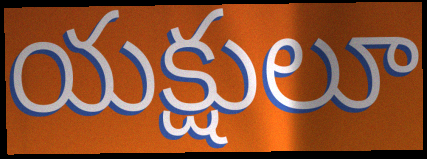
యక్షులూ